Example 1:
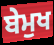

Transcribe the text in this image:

ਬੇਮੁਖ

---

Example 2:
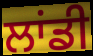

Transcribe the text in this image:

ਲਾਂਡੀ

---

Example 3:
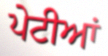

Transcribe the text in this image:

ਪੇਟੀਆਂ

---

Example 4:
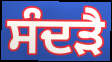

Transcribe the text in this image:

ਸੰਦੜੈ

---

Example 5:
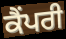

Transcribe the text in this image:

ਕੈਂਪਰੀ